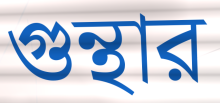
গুন্থার